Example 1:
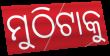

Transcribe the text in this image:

ମୁଠିଟାକୁ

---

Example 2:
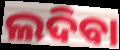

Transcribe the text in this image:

ଲଦିବା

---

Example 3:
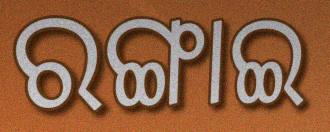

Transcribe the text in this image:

ରଙ୍ଗାଇ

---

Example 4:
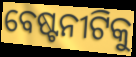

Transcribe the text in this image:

ବେଷ୍ଟନୀଟିକୁ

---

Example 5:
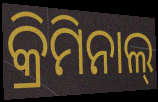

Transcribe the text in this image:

କ୍ରିମିନାଲ୍